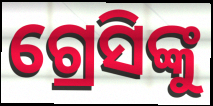
ଗ୍ରେସିଙ୍କୁ